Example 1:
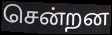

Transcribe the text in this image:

சென்றன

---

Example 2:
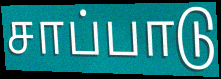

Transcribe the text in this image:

சாப்பாடு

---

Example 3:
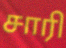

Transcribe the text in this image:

சாரி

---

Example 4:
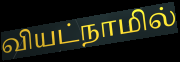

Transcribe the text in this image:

வியட்நாமில்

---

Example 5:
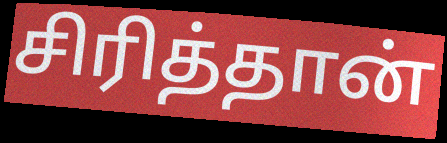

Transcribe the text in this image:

சிரித்தான்